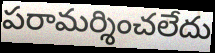
పరామర్శించలేదు